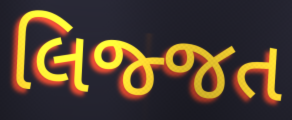
લિજ્જત